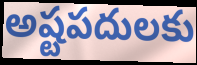
అష్టపదులకు